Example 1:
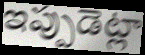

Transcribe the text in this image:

ఇప్పుడెట్లా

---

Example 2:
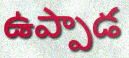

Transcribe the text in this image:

ఉప్పాడ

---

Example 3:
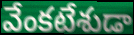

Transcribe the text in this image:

వేంకటేశుడా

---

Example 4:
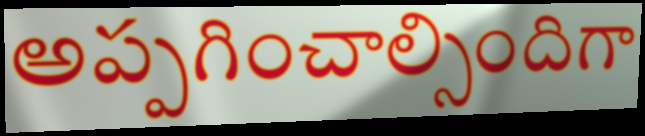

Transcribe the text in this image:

అప్పగించాల్సిందిగా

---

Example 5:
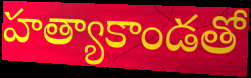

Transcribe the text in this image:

హత్యాకాండతో